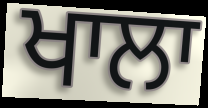
ਖਾਲਾ